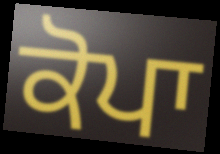
ਕੋਪਾ